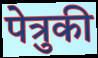
पेत्रुकी